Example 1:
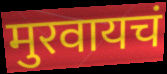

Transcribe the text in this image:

मुरवायचं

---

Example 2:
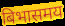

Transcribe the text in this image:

बिभासमय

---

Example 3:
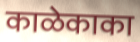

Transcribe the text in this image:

काळेकाका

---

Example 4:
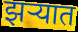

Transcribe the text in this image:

झर्‍यात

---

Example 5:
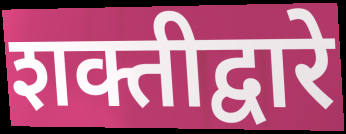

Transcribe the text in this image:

शक्तीद्वारे